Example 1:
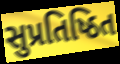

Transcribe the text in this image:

સુપ્રતિષ્ઠિત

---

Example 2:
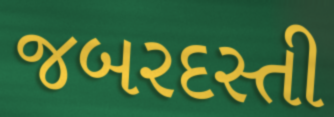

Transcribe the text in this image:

જબરદસ્તી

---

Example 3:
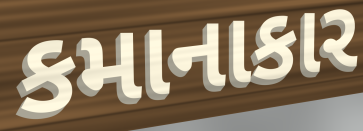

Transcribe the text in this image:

કમાનાકાર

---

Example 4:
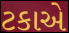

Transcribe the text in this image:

ટકાએ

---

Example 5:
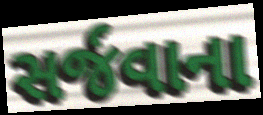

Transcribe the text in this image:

સર્જવાના